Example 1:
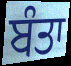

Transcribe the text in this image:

ਬੰਤਾ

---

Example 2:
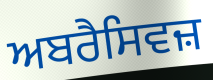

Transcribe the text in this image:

ਅਬਰੈਸਿਵਜ਼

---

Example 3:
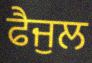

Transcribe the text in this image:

ਫੈਜੁਲ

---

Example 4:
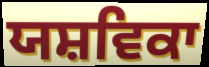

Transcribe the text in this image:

ਯਸ਼ਵਿਕਾ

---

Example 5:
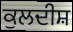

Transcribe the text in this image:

ਕੁਲਦੀਸ਼